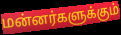
மன்னர்களுக்கும்